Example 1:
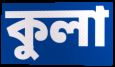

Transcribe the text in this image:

কুলা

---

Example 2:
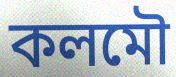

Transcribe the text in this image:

কলমৌ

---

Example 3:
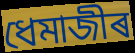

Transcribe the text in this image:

ধেমাজীৰ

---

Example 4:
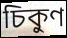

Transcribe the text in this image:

চিকুণ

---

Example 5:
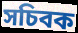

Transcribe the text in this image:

সচিবক